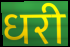
धरी